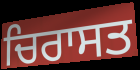
ਚਿਰਾਸਤ